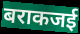
बराकजई